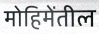
मोहिमेंतील